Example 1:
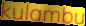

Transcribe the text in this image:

kulambu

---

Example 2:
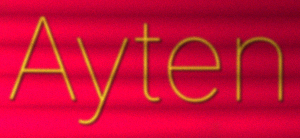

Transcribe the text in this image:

Ayten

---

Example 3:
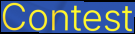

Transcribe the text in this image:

Contest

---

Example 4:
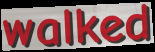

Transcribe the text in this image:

walked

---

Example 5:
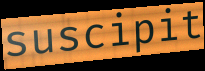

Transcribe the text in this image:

suscipit